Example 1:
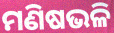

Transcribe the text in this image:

ମଣିଷଭଳି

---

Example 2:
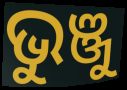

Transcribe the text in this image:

ଭୁଞ୍ଜୁ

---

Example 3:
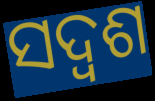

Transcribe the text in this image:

ସଦ୍ଵଶ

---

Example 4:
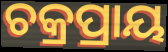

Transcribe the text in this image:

ଚକ୍ରପ୍ରାୟ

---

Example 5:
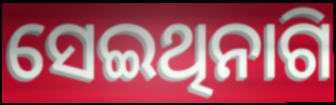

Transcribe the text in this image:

ସେଇଥିନାଗି